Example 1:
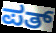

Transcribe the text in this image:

ಪತ್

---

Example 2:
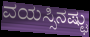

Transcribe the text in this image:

ವಯಸ್ಸಿನಷ್ಟು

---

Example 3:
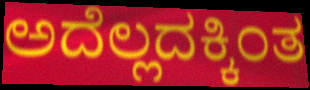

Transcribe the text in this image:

ಅದೆಲ್ಲದಕ್ಕಿಂತ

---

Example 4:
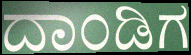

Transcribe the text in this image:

ದಾಂಡಿಗ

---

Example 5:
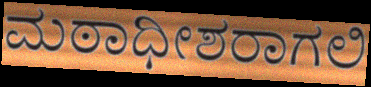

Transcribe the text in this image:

ಮಠಾಧೀಶರಾಗಲಿ